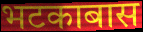
भटकाबास